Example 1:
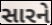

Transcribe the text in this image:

સારને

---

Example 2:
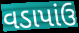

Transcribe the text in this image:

વડાપાંઉ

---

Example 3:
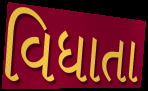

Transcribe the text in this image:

વિધાતા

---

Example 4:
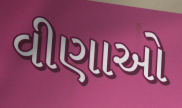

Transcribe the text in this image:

વીણાઓ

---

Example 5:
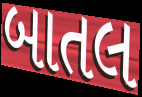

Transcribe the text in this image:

બાતલ